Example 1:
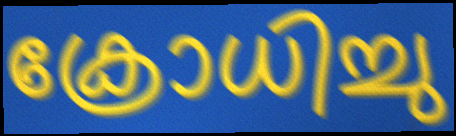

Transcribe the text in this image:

ക്രോധിച്ചു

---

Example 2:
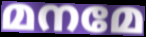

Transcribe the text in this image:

മനമേ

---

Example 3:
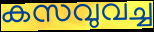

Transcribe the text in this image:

കസവുവച്ച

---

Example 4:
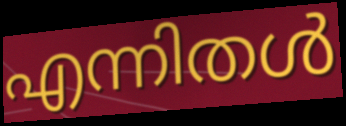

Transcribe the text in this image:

എന്നിതൾ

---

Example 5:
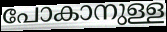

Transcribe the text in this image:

പോകാനുള്ള